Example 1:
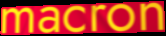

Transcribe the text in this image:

macron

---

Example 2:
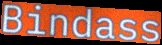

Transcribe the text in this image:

Bindass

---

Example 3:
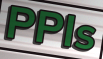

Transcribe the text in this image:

PPIs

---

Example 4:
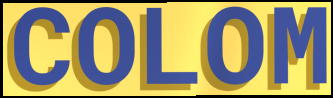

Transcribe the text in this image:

COLOM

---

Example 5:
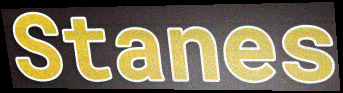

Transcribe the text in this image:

Stanes